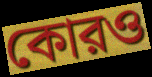
কোরও